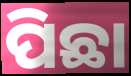
ପିଛା